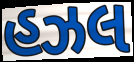
હઝલ